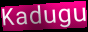
Kadugu